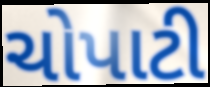
ચોપાટી